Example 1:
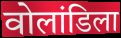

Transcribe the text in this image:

वोलांडिला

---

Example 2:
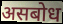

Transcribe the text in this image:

असबोध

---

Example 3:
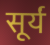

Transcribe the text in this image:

सूर्य॑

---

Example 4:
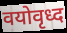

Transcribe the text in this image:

वयोवृध्द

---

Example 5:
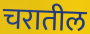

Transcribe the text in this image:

चरातील